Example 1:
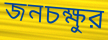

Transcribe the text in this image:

জনচক্ষুর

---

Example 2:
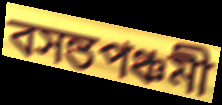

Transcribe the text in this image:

বসন্তপঞ্চমী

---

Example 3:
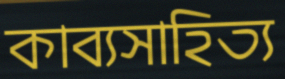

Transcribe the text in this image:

কাব্যসাহিত্য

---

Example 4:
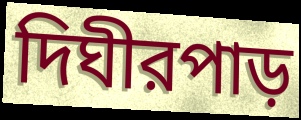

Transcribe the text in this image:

দিঘীরপাড়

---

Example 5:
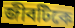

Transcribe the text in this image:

জীবটিকে